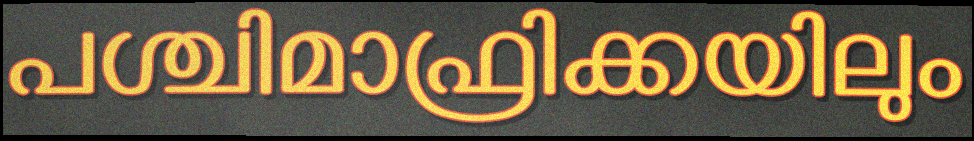
പശ്ചിമാഫ്രിക്കയിലും